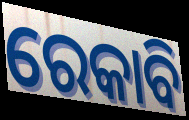
ରେକାବି